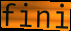
fini